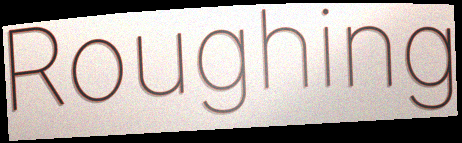
Roughing